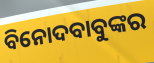
ବିନୋଦବାବୁଙ୍କର